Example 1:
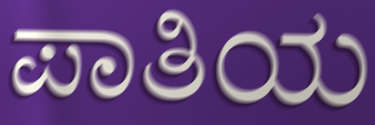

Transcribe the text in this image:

ಪಾತಿಯ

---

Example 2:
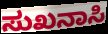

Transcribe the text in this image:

ಸುಖನಾಸಿ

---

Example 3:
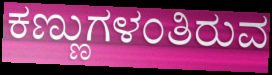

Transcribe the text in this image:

ಕಣ್ಣುಗಳಂತಿರುವ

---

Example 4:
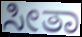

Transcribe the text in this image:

ಸೀತಾ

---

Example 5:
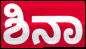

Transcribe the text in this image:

ಶಿನಾ